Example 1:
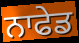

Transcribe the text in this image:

ਨਾਫੇਡ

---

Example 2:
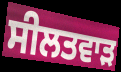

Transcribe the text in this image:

ਸੀਲਤਵਾੜ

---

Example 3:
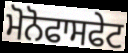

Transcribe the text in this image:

ਮੋਨੋਫਾਸਫੇਟ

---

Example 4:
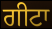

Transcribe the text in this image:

ਗੀਟਾ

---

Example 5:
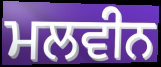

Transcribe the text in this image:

ਮਲਵੀਨ